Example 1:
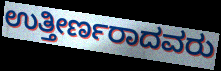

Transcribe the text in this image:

ಉತ್ತೀರ್ಣರಾದವರು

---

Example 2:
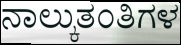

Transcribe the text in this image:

ನಾಲ್ಕುತಂತಿಗಳ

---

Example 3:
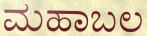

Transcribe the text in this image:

ಮಹಾಬಲ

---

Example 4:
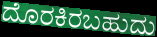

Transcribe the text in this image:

ದೊರಕಿರಬಹುದು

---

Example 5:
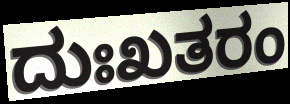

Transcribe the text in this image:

ದುಃಖತರಂ